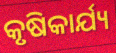
କୃଷିକାର୍ଯ୍ୟ